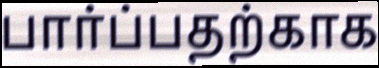
பார்ப்பதற்காக